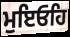
ਮੁਇਓਹਿ